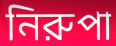
নিরুপা